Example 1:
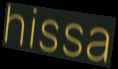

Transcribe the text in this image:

hissa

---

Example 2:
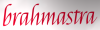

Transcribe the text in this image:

brahmastra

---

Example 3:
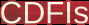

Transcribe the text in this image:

CDFIs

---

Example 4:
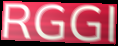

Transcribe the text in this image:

RGGI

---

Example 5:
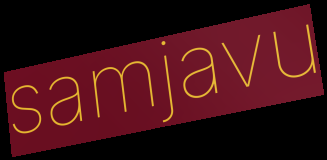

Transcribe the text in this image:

samjavu